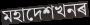
মহাদেশখনৰ